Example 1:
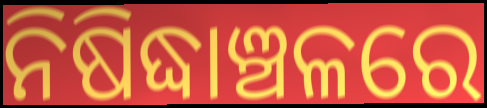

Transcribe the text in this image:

ନିଷିଦ୍ଧାଞ୍ଚଳରେ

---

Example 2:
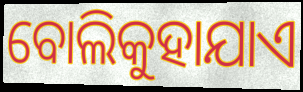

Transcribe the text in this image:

ବୋଲିକୁହାଯାଏ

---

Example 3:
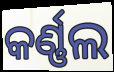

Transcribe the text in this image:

କର୍ଣ୍ଣଲ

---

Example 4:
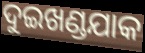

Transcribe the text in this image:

ଦୁଇଖଣ୍ଡଯାକ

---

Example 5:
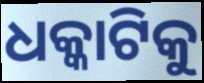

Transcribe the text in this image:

ଧକ୍କାଟିକୁ